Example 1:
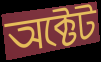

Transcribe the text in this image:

অক্টেট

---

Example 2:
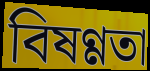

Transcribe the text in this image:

বিষণ্ণতা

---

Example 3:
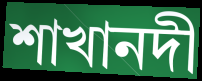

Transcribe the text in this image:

শাখানদী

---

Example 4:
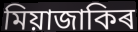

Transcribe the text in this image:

মিয়াজাকিৰ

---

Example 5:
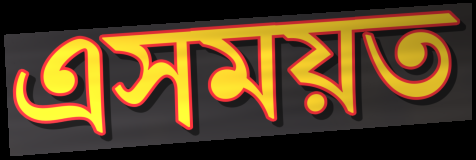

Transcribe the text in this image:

এসময়ত